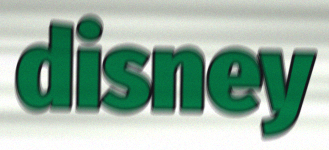
disney